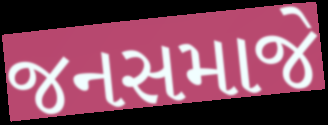
જનસમાજે